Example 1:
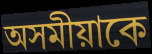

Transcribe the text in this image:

অসমীয়াকে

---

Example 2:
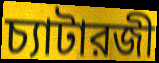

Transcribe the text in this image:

চ্যাটারজী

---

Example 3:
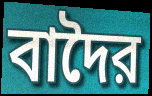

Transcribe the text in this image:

বাদৈর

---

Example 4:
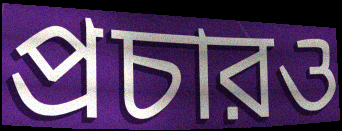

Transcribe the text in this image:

প্রচারও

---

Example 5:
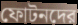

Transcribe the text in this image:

ফোটনদের